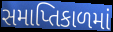
સમાપ્તિકાળમાં